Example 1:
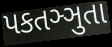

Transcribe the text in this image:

પકતઞ્ઞુતા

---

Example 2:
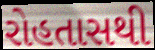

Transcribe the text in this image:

રોહતાસથી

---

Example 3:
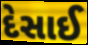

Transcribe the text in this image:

દેસાઈ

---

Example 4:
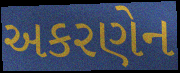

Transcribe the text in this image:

અકરણેન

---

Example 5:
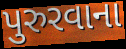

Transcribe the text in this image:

પુરુરવાના